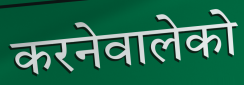
करनेवालेको